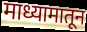
माध्यामातून